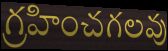
గ్రహించగలవు